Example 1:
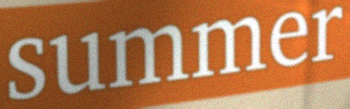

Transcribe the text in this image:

summer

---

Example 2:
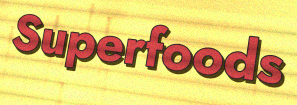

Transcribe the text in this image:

Superfoods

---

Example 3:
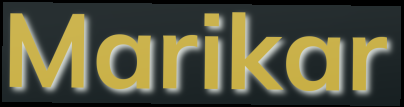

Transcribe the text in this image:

Marikar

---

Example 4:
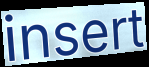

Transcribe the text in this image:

insert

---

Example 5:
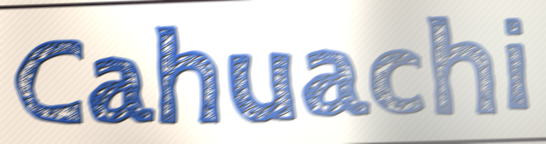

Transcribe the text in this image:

Cahuachi